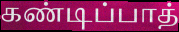
கண்டிப்பாத்